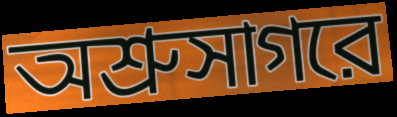
অশ্রুসাগরে